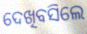
ଦେଖିବସିଲେ